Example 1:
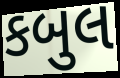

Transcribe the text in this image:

કબુલ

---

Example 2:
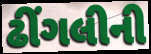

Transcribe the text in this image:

ઢીંગલીની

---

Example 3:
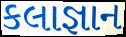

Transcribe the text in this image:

કલાજ્ઞાન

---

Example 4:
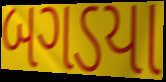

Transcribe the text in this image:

બગડયા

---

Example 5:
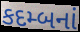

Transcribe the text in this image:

કદમ્બનાં